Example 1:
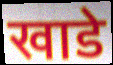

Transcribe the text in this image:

खाडे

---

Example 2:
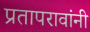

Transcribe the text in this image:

प्रतापरावांनी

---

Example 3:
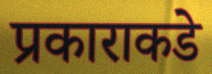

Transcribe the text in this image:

प्रकाराकडे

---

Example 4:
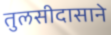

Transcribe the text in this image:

तुलसीदासाने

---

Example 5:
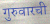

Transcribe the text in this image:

गुरुवारची